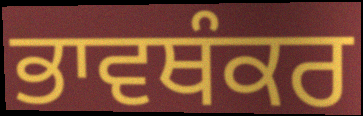
ਭਾਵਥੰਕਰ